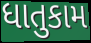
ધાતુકામ